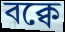
বক্বে